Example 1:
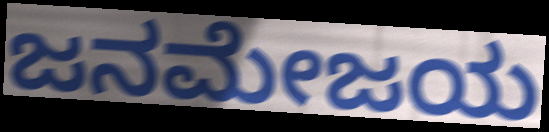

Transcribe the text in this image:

ಜನಮೇಜಯ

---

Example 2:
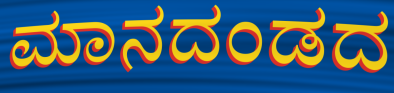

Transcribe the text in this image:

ಮಾನದಂಡದ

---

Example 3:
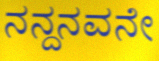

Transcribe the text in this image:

ನನ್ದನವನೇ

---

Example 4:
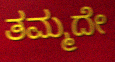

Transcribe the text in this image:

ತಮ್ಮದೇ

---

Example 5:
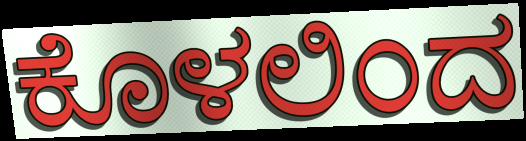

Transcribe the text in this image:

ಕೊಳಲಿಂದ